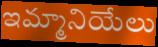
ఇమ్మానియేలు